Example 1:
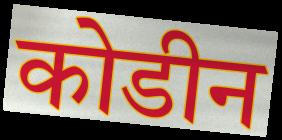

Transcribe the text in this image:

कोडीन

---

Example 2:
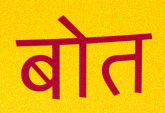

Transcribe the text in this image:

बोत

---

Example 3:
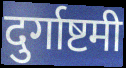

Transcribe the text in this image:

दुर्गाष्टमी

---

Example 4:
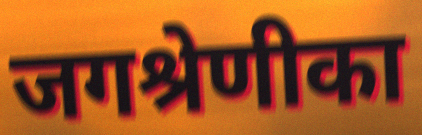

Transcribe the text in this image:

जगश्रेणीका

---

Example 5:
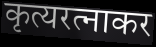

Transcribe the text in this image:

कृत्यरत्नाकर